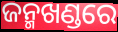
ଜନ୍ମଖଣ୍ଡରେ